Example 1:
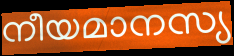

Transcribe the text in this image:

നീയമാനസ്യ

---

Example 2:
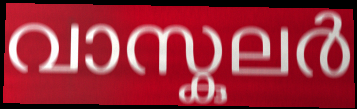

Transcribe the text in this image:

വാസ്കുലർ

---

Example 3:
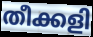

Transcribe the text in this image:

തീക്കളി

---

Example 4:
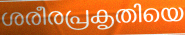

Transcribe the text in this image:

ശരീരപ്രകൃതിയെ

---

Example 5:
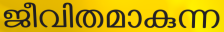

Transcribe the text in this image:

ജീവിതമാകുന്ന